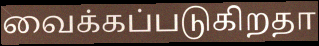
வைக்கப்படுகிறதா